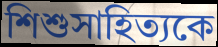
শিশুসাহিত্যকে